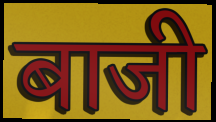
बाजी